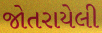
જોતરાયેલી